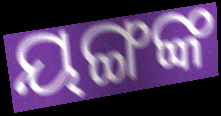
ୟଙ୍ଗଙ୍କ